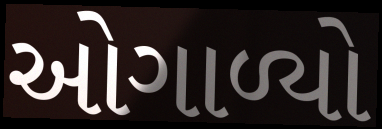
ઓગાળ્યો